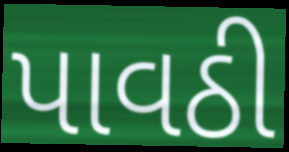
પાવઠી